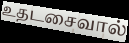
உதடசைவால்